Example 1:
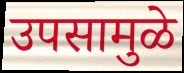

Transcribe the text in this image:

उपसामुळे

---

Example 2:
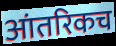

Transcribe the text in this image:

आंतरिकच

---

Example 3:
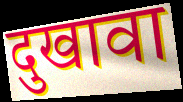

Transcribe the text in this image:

दुखावा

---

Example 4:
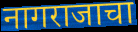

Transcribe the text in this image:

नागराजाचा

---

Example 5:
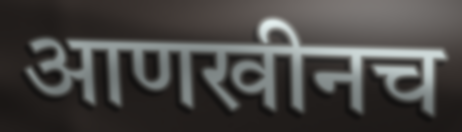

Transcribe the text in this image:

आणखीनच